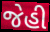
જેહી